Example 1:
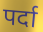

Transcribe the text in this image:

पर्दा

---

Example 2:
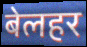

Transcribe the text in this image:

बेलहर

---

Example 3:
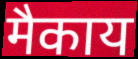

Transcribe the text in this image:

मैकाय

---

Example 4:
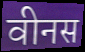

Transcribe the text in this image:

वीनस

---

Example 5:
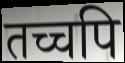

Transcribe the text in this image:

तच्चपि